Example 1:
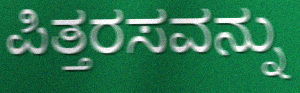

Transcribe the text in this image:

ಪಿತ್ತರಸವನ್ನು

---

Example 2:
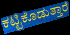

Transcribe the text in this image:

ಕಟ್ಟಿಕೊಡುತ್ತಾರೆ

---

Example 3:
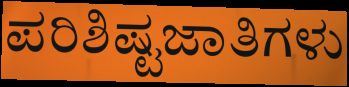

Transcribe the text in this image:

ಪರಿಶಿಷ್ಟಜಾತಿಗಳು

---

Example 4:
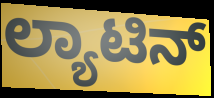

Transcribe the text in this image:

ಲ್ಯಾಟಿನ್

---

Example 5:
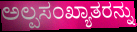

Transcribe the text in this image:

ಅಲ್ಪಸಂಖ್ಯಾತರನ್ನು